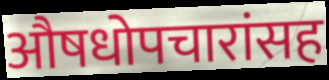
औषधोपचारांसह